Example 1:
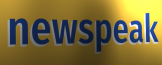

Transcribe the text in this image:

newspeak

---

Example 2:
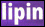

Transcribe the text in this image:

lipin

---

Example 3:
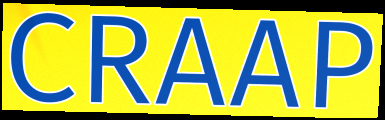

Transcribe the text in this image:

CRAAP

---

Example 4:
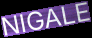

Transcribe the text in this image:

NIGALE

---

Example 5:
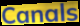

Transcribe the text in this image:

Canals